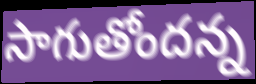
సాగుతోందన్న